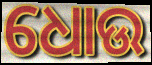
ଧୋଉ